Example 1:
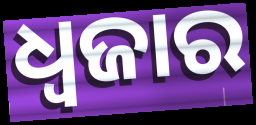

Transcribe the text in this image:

ଧ୍ୱଜାର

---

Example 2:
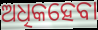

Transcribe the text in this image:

ଅଧିକହେବା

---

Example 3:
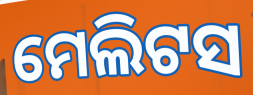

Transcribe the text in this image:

ମେଲିଟସ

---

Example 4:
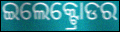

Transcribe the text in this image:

ଇଲେକ୍ଟ୍ରୋଡର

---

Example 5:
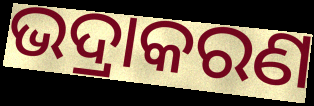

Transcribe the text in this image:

ଭଦ୍ରାକରଣ